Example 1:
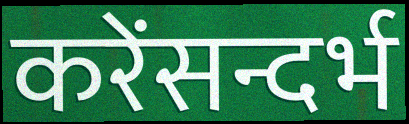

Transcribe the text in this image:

करेंसन्दर्भ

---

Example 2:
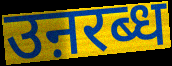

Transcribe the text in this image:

उऩरब्ध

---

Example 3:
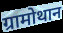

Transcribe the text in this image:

ग्रामोथान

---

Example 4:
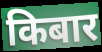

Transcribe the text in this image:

किबार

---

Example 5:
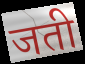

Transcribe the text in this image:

जती